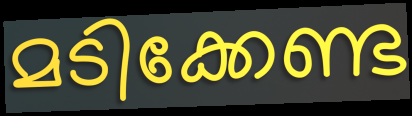
മടിക്കേണ്ട